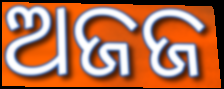
ଅଜଜ